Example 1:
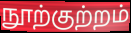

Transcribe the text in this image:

நூற்குற்றம்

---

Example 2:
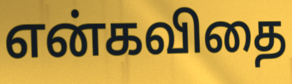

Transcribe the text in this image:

என்கவிதை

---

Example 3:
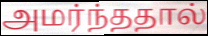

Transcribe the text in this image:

அமர்ந்ததால்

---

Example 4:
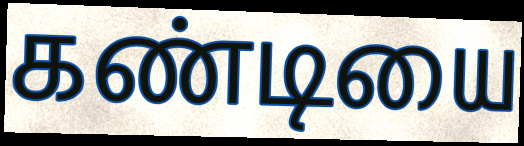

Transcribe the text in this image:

கண்டியை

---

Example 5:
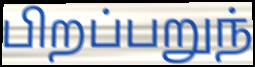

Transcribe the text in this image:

பிறப்பறுந்